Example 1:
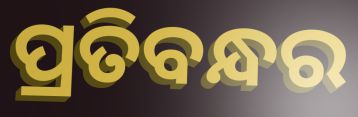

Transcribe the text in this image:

ପ୍ରତିବନ୍ଧର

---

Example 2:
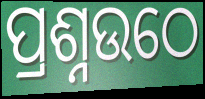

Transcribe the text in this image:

ପ୍ରଶ୍ନଉଠେ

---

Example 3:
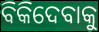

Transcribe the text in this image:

ବିକିଦେବାକୁ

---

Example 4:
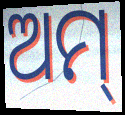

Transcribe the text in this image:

ଅମ୍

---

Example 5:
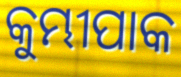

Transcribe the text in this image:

କୁମ୍ଭୀପାକ